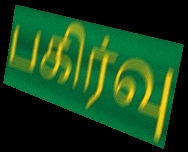
பகிர்வு